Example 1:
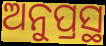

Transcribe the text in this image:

ଅନୁପ୍ରସ୍ଥ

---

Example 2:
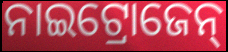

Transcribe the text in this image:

ନାଇଟ୍ରୋଜେନ୍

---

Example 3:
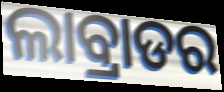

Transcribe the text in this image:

ଲାବ୍ରାଡର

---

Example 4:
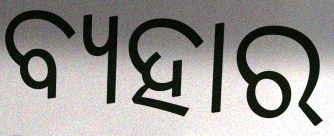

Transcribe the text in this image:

ବ୍ୟହାର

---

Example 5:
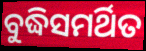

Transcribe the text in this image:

ବୁଦ୍ଧିସମର୍ଥିତ